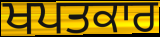
ਖਪਤਕਾਰ